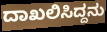
ದಾಖಲಿಸಿದ್ದನು